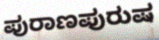
ಪುರಾಣಪುರುಷ